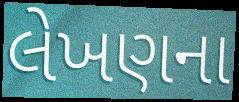
લેખણના